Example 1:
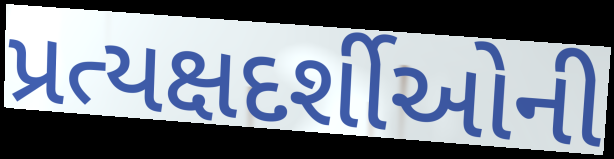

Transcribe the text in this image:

પ્રત્યક્ષદર્શીઓની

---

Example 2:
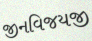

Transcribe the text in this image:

જીનવિજયજી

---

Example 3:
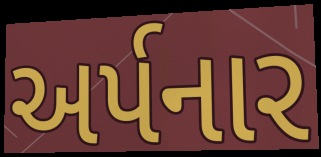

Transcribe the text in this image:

અર્પનાર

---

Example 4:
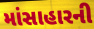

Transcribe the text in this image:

માંસાહારની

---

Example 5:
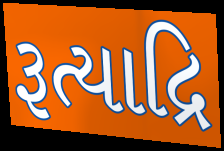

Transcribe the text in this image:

રૂત્યાદ્રિ